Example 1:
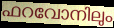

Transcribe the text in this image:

ഫറവോനിലും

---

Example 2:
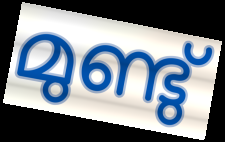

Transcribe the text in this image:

മുണ്ടു്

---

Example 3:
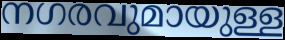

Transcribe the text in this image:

നഗരവുമായുള്ള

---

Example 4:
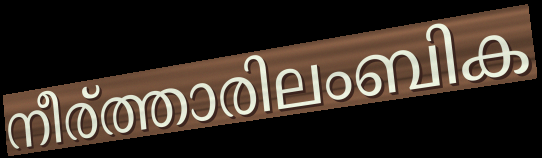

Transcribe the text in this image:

നീര്ത്താരിലംബിക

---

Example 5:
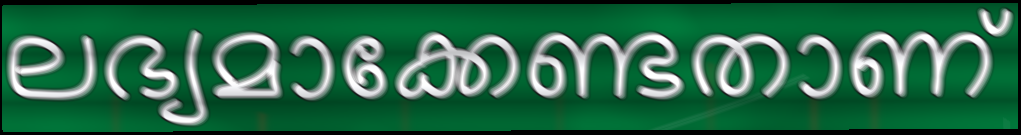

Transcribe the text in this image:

ലഭ്യമാക്കേണ്ടതാണ്